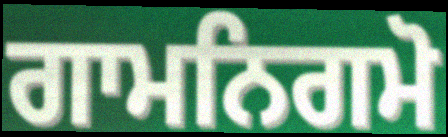
ਗਾਮਨਿਗਮੋ